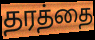
தரத்தை